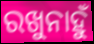
ରଖୁନାହୁଁ